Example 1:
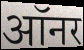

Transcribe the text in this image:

ऑनर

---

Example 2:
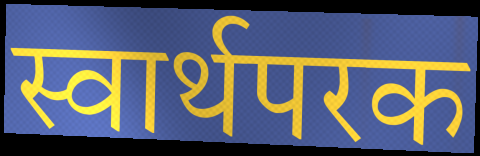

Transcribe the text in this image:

स्वार्थपरक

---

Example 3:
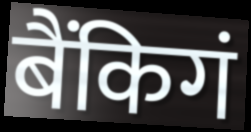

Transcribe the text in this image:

बैंकिगं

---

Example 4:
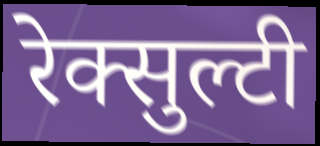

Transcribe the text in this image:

रेक्सुल्टी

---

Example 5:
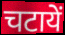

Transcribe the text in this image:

चटायें